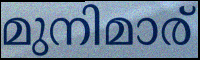
മുനിമാര്